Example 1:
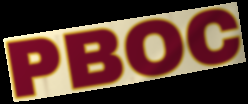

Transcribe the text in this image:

PBOC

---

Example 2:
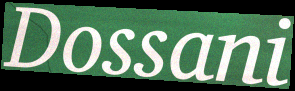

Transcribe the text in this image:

Dossani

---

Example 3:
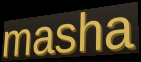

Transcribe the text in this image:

masha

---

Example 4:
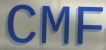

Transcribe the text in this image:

CMF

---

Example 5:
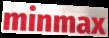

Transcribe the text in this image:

minmax